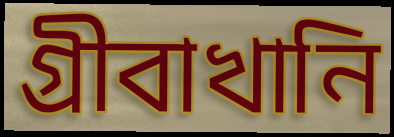
গ্রীবাখানি